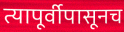
त्यापूर्वीपासूनच